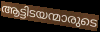
ആട്ടിടയന്മാരുടെ